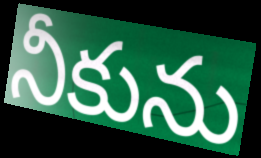
నీకును